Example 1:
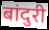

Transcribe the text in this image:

बांदुरी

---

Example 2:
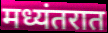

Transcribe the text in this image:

मध्यंतरात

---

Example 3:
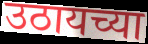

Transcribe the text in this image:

उठायच्या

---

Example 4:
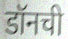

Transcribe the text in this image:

डॉनची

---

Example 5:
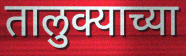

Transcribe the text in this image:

तालुक्याच्या